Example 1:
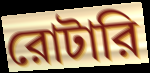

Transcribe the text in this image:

রোটারি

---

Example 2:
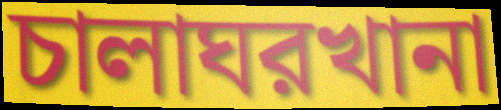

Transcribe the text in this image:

চালাঘরখানা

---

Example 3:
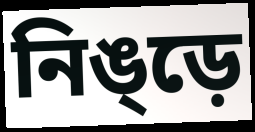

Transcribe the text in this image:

নিঙ্ড়ে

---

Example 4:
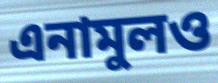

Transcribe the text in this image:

এনামুলও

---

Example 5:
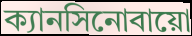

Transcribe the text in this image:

ক্যানসিনোবায়ো